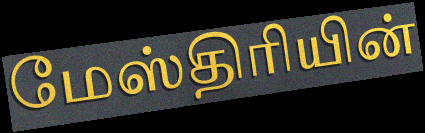
மேஸ்திரியின்